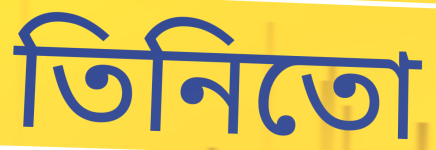
তিনিতো